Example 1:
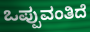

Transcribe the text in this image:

ಒಪ್ಪುವಂತಿದೆ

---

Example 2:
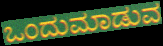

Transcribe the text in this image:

ಒಂದುಮಾಡುವ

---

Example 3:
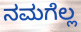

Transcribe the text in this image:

ನಮಗೆಲ್ಲ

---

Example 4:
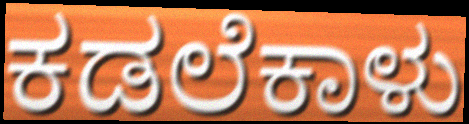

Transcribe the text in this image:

ಕಡಲೆಕಾಳು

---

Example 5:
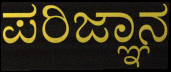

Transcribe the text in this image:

ಪರಿಜ್ಞಾನ